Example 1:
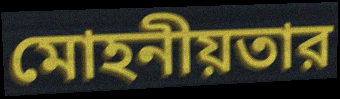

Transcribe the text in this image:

মোহনীয়তার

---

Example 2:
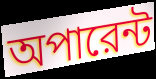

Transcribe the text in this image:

অপারেন্ট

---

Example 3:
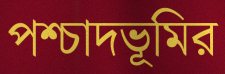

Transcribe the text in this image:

পশ্চাদভূমির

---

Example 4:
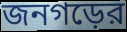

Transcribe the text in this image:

জনগড়ের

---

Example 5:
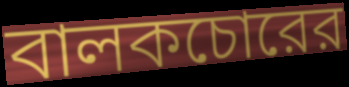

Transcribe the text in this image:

বালকচোরের